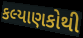
કલ્યાણકોથી